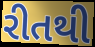
રીતથી